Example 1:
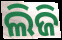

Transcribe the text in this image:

ଲିଜି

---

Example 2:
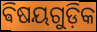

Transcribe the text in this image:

ଵିଷୟଗୁଡ଼ିକ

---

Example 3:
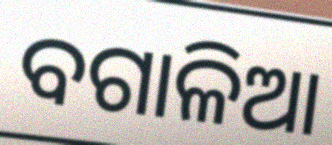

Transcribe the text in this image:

ବଗାଳିଆ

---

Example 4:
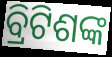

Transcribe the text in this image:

ବ୍ରିଟିଶଙ୍କ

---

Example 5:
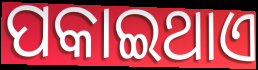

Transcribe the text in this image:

ପକାଇଥାଏ